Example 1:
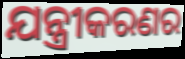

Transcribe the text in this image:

ଯନ୍ତ୍ରୀକରଣର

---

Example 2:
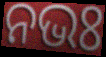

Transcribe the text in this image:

ନଭଃ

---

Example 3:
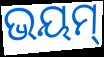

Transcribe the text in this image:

ଭୟମ୍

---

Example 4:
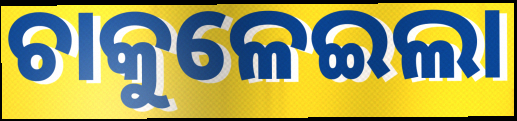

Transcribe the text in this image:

ଚାକୁଳେଇଲା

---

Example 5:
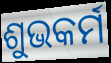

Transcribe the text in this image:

ଶୁଭକର୍ମ